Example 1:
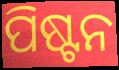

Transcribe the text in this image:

ପିଷ୍ଟନ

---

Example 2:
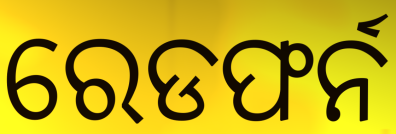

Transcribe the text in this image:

ରେଡଫର୍ନ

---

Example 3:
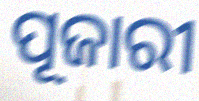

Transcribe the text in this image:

ପୂଜାରୀ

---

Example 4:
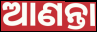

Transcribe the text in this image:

ଆଣନ୍ତା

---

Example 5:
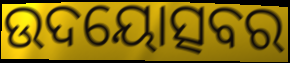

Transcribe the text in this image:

ଉଦୟୋତ୍ସବର